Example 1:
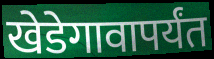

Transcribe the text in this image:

खेडेगावापर्यंत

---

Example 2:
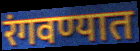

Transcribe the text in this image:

रंगवण्यात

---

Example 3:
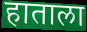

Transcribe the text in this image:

हाताला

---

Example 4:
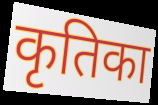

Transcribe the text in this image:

कृतिका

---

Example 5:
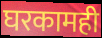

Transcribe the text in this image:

घरकामही